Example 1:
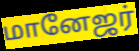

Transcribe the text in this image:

மானேஜர்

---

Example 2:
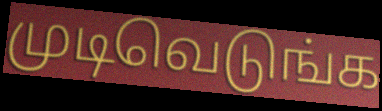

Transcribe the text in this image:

முடிவெடுங்க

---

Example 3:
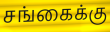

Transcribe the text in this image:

சங்கைக்கு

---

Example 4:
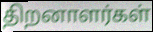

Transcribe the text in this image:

திறனாளர்கள்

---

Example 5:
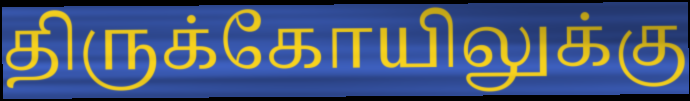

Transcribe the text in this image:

திருக்கோயிலுக்கு